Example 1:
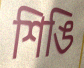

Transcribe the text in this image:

শিঙি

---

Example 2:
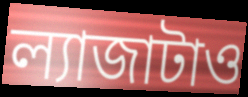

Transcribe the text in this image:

ল্যাজাটাও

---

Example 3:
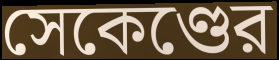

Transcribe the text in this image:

সেকেণ্ডের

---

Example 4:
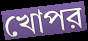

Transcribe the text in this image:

খোপর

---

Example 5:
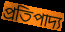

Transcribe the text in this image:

প্রতিপাদ্য